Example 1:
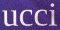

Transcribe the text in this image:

ucci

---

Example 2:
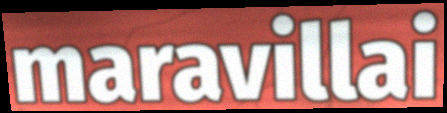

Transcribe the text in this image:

maravillai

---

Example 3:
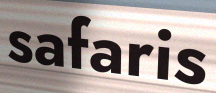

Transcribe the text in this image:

safaris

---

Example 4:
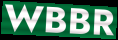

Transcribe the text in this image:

WBBR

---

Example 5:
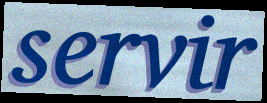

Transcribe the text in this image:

servir